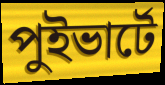
পুইভার্টে